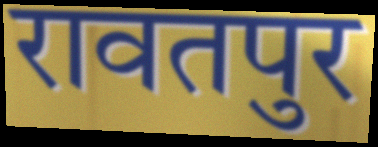
रावतपुर